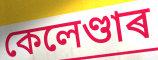
কেলেণ্ডাৰ